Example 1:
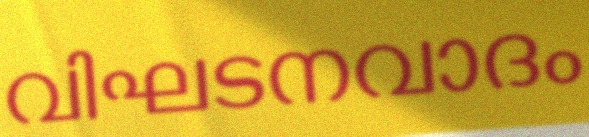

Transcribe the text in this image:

വിഘടനവാദം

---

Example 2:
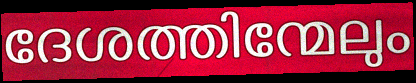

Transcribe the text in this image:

ദേശത്തിന്മേലും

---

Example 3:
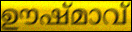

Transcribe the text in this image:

ഊഷ്മാവ്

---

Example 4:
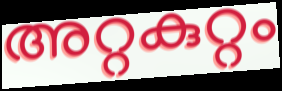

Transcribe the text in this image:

അറ്റകുറ്റം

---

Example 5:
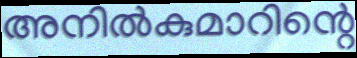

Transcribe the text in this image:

അനിൽകുമാറിന്റെ